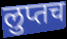
लुप्तच